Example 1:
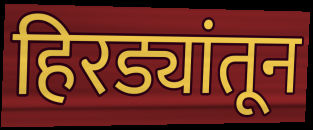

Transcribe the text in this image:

हिरड्यांतून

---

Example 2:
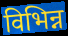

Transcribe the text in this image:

विभिन्न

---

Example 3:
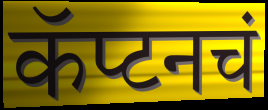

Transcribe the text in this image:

कॅप्टनचं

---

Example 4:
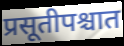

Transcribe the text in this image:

प्रसूतीपश्चात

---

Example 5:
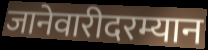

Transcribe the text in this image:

जानेवारीदरम्यान